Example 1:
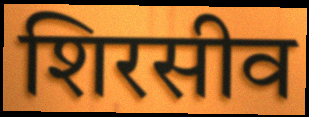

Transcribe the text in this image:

शिरसीव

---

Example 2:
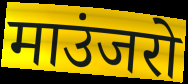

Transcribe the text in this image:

माउंजरो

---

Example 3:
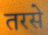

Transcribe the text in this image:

तरसे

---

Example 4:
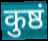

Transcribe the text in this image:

कुष्ठं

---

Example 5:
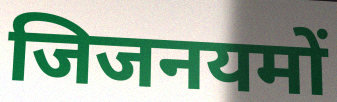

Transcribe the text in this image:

जिजनयमों